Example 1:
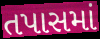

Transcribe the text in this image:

તપાસમાં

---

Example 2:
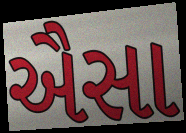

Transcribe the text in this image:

ઐસા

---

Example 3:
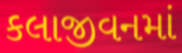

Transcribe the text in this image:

કલાજીવનમાં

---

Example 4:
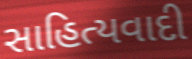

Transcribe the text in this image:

સાહિત્યવાદી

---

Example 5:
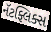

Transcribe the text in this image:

નૅટફ્લિક્સ